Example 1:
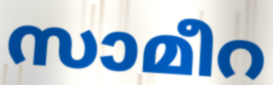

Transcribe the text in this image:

സാമീറ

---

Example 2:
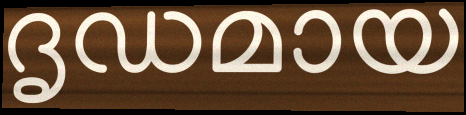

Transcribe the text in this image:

ദൃഡമായ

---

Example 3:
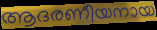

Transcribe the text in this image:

ആദരണീയനായ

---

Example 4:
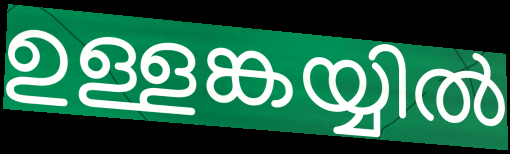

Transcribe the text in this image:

ഉള്ളങ്കയ്യിൽ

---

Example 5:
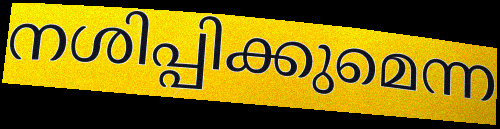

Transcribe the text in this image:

നശിപ്പിക്കുമെന്ന